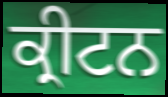
ਕ੍ਰੀਟਨ